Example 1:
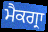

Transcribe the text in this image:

ਮੈਕਗ੍ਰਾ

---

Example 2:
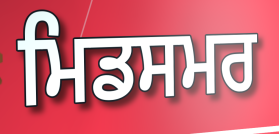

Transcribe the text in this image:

ਮਿਡਸਮਰ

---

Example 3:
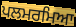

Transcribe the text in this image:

ਪਲਮਰਮਿਆ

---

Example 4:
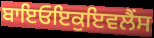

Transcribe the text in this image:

ਬਾਇਓਇਕੁਇਵਲੈਂਸ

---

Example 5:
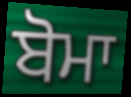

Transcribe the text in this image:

ਬੋਮਾ